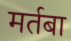
मर्तबा